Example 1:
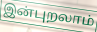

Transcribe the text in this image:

இன்புறலாம்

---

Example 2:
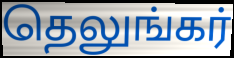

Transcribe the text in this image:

தெலுங்கர்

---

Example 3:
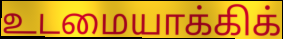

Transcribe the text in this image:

உடமையாக்கிக்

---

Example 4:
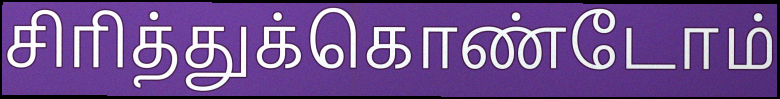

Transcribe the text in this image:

சிரித்துக்கொண்டோம்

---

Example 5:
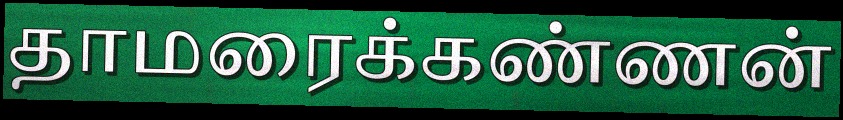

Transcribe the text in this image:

தாமரைக்கண்ணன்